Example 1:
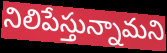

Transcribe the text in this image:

నిలిపేస్తున్నామని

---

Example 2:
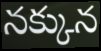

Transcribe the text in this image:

నక్కున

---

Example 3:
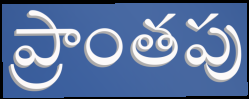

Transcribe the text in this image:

ప్రాంతపు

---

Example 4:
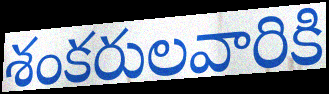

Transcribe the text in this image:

శంకరులవారికి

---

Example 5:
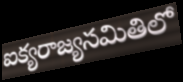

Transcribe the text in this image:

ఐక్యరాజ్యసమితిలో